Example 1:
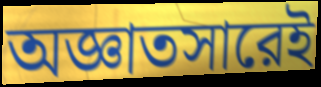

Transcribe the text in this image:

অজ্ঞাতসারেই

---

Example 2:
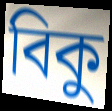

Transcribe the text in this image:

বিকু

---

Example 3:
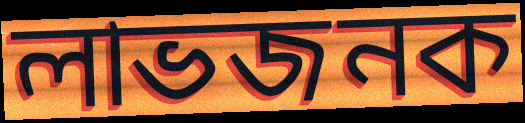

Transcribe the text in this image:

লাভজনক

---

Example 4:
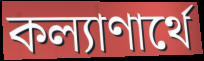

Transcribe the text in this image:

কল্যাণার্থে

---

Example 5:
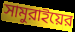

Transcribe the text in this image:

সামুরাইয়ের